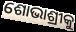
ଶୋଭାଶ୍ରୀକୁ